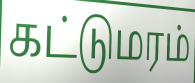
கட்டுமரம்